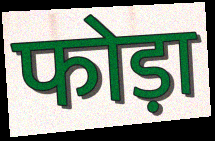
फोड़ा